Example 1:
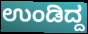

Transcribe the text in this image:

ಉಂಡಿದ್ದ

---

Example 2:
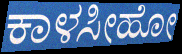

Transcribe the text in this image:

ಕಾಳಸೀಹೋ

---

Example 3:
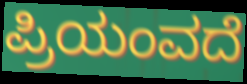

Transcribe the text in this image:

ಪ್ರಿಯಂವದೆ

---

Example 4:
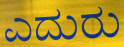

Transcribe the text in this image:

ಎದುರು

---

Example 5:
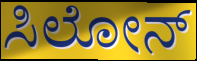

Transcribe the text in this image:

ಸಿಲೋನ್